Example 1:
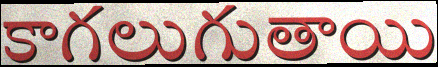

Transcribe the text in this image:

కాగలుగుతాయి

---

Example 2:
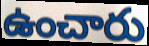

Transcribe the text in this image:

ఉంచారు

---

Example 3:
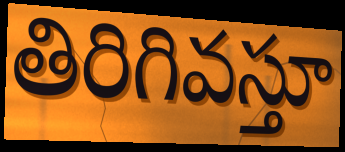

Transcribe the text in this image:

తిరిగివస్తూ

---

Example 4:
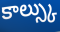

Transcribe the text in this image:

కాల్స్కు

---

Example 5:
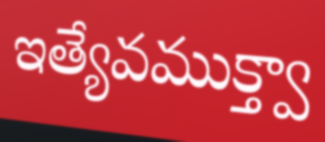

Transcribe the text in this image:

ఇత్యేవముక్త్వా